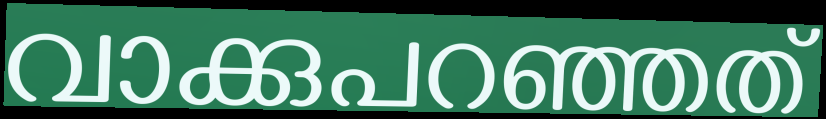
വാക്കുപറഞ്ഞത്